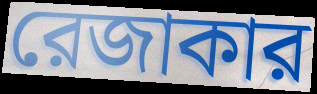
রেজাকার